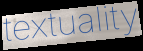
textuality